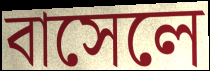
বাসেলে